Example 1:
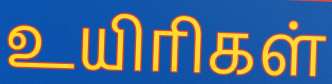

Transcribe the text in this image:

உயிரிகள்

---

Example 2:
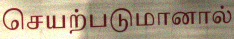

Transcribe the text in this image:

செயற்படுமானால்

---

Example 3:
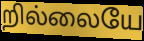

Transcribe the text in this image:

றில்லையே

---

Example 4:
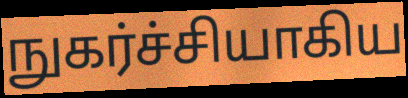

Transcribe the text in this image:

நுகர்ச்சியாகிய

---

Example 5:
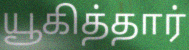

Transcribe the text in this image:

யூகித்தார்